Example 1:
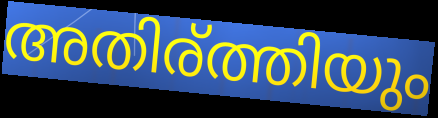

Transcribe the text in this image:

അതിര്ത്തിയും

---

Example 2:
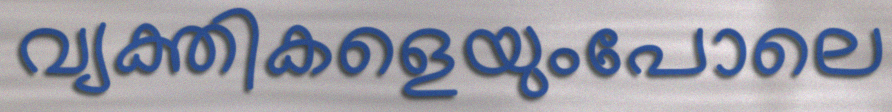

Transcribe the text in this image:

വ്യക്തികളെയുംപോലെ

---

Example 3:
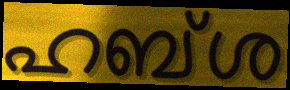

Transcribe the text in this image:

ഹബ്ശ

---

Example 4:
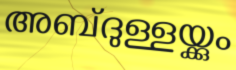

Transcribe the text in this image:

അബ്ദുള്ളയ്ക്കും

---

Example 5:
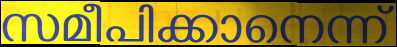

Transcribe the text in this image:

സമീപിക്കാനെന്ന്